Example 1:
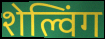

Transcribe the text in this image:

शेल्विंग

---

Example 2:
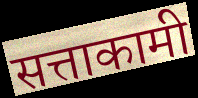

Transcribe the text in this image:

सत्ताकामी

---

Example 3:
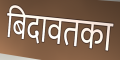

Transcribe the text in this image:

बिदावतका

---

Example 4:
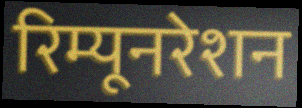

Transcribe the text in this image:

रिम्यूनरेशन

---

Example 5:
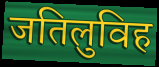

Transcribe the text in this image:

जतिलुविह